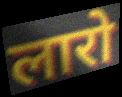
लारो